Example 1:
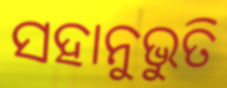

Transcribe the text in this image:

ସହାନୁଭୁତି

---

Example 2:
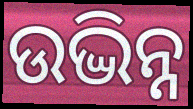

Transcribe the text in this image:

ଉଦ୍ଭିନ୍ନ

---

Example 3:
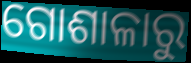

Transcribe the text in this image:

ଗୋଶାଳାରୁ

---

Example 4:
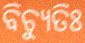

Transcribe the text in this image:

ବିଚ୍ୟୁତିଃ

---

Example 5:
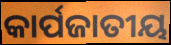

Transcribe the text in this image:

କାର୍ପଜାତୀୟ